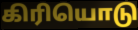
கிரியொடு